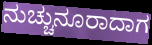
ನುಚ್ಚುನೂರಾದಾಗ